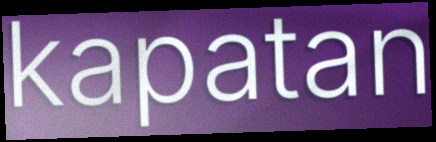
kapatan